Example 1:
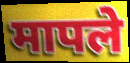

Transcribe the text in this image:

मापले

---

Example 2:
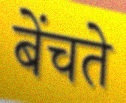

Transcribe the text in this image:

बेंचते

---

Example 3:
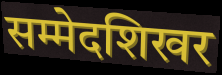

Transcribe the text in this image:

सम्मेदशिखर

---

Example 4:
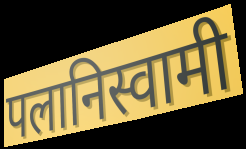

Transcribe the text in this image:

पलानिस्वामी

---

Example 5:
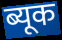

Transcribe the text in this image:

ब्यूक